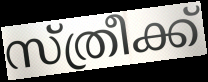
സ്ത്രീക്ക്